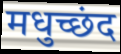
मधुच्छंद